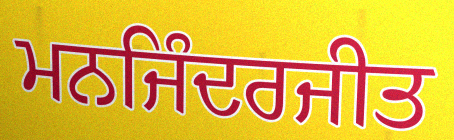
ਮਨਜਿੰਦਰਜੀਤ